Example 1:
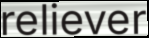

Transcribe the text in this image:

reliever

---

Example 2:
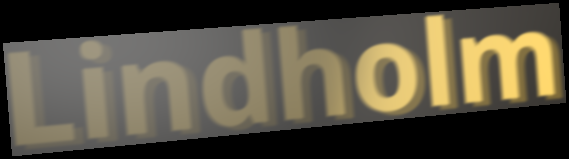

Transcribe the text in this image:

Lindholm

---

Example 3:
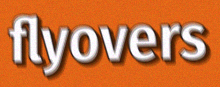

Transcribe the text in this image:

flyovers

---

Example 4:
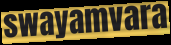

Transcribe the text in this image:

swayamvara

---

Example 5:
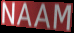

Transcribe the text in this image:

NAAM